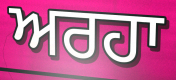
ਅਰਹਾ